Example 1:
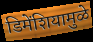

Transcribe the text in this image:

डिमेंशियामुळे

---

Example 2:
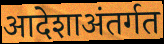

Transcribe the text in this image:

आदेशाअंतर्गत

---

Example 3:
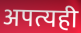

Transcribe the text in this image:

अपत्यही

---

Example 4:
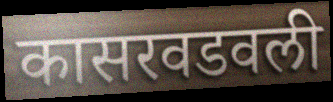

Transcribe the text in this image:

कासरवडवली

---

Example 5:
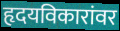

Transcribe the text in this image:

हृदयविकारांवर